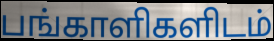
பங்காளிகளிடம்